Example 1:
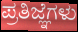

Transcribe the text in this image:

ಪ್ರತಿಜ್ಞೆಗಳು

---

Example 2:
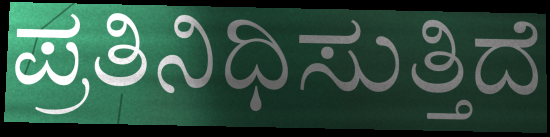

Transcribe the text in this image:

ಪ್ರತಿನಿಧಿಸುತ್ತಿದೆ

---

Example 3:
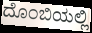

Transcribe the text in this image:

ದೊಂಬಿಯಲ್ಲಿ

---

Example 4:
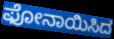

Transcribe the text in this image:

ಫೋನಾಯಿಸಿದ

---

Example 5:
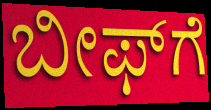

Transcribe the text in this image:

ಬೀಫ್‌ಗೆ